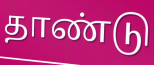
தாண்டு